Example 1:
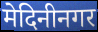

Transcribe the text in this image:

मेदिनीनगर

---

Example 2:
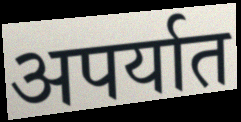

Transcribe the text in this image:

अपर्यात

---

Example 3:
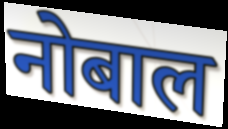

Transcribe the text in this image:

नोबाल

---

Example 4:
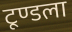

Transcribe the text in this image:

टूण्डला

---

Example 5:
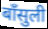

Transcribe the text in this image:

बाँसुली